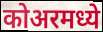
कोअरमध्ये